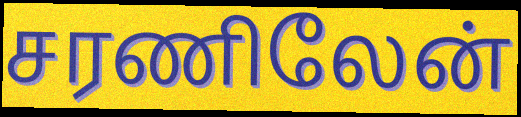
சரணிலேன்